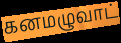
கனமழுவாட்